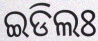
ଇଡିଲଃ